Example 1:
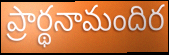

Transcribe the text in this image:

ప్రార్థనామందిర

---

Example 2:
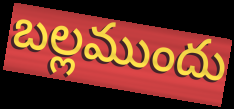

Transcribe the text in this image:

బల్లముందు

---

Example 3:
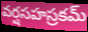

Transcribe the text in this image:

వర్షసహస్రకమ్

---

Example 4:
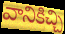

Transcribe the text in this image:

వానికిచ్చి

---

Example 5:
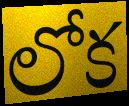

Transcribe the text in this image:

లోక